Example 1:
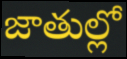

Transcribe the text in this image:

జాతుల్లో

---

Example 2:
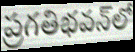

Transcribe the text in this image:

ప్రగతిభవన్‌లో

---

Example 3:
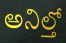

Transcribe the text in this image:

అనిల్తో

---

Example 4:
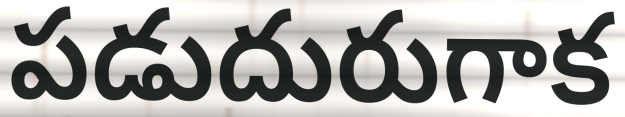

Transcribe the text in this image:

పడుదురుగాక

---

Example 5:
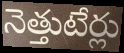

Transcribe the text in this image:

నెత్తుటేర్లు